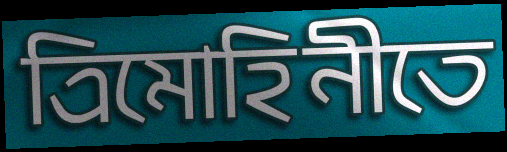
ত্রিমোহিনীতে